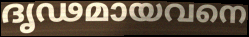
ദൃഢമായവനെ